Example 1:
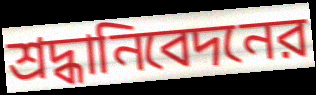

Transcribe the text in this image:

শ্রদ্ধানিবেদনের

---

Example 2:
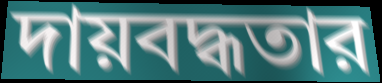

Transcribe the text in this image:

দায়বদ্ধতার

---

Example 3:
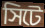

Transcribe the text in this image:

সিটে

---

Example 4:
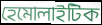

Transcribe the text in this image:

হেমোলাইটিক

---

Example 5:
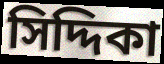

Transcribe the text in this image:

সিদ্দিকা